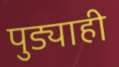
पुड्याही